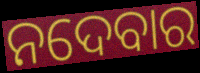
ନଦେବାର